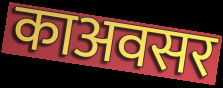
काअवसर